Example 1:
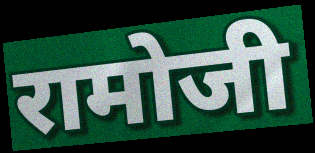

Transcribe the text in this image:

रामोजी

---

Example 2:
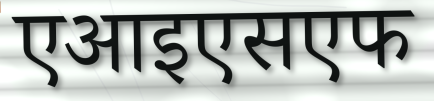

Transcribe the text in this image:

एआइएसएफ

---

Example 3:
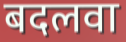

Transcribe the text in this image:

बदलवा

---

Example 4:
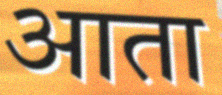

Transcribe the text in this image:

आता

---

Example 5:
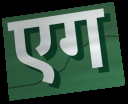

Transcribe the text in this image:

एग